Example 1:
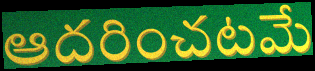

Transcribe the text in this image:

ఆదరించటమే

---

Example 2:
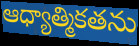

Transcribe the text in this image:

ఆధ్యాత్మికతను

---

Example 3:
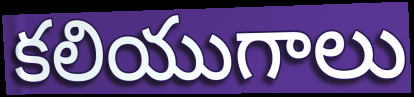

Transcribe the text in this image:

కలియుగాలు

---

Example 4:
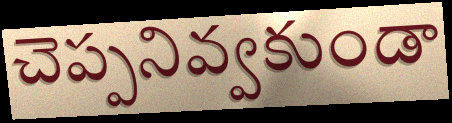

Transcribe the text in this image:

చెప్పనివ్వకుండా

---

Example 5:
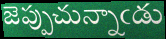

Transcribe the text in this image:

జెప్పుచున్నాఁడు